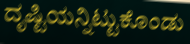
ದೃಷ್ಟಿಯನ್ನಿಟ್ಟುಕೊಂಡು